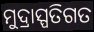
ମୁଦ୍ରାସ୍ପତିଗତ